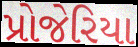
પ્રોજેરિયા